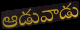
ఆడువాడు